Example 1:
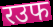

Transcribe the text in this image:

रउफ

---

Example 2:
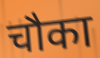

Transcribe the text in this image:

चौका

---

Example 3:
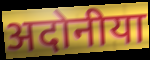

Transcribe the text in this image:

अदोनीया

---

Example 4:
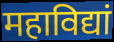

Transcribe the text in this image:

महाविद्यां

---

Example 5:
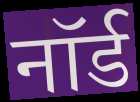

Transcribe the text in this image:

नॉर्ड